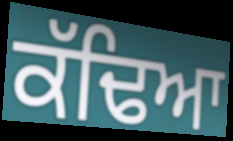
ਕੱਢਿਆ